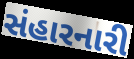
સંહારનારી